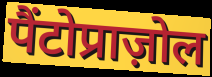
पैंटोप्राज़ोल